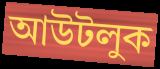
আউটলুক